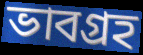
ভাবগ্রহ